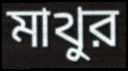
মাথুর